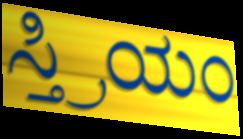
ಸ್ತ್ರಿಯಂ